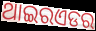
ଥାଇରଏଡର